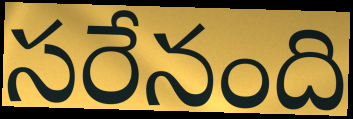
సరేనంది